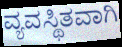
ವ್ಯವಸ್ಥಿತವಾಗಿ